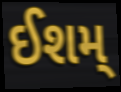
ઈશમ્